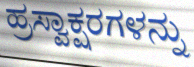
ಹ್ರಸ್ವಾಕ್ಷರಗಳನ್ನು